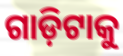
ଗାଡ଼ିଟାକୁ